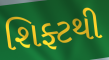
શિફ્ટથી